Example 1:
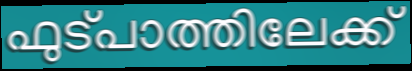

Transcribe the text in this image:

ഫുട്പാത്തിലേക്ക്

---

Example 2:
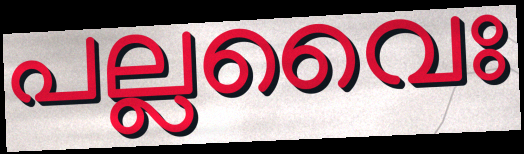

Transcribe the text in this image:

പല്ലവൈഃ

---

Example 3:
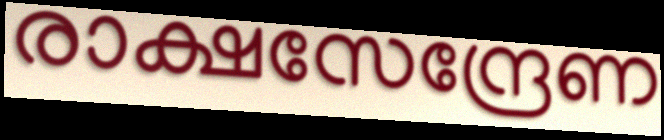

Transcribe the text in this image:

രാക്ഷസേന്ദ്രേണ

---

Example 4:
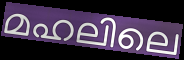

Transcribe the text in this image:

മഹലിലെ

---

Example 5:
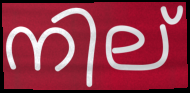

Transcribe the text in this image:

നില്